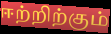
ஈற்றிற்கும்